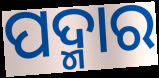
ପଦ୍ମାର